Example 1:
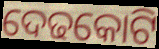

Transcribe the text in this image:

ଦେଢକୋଟି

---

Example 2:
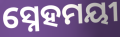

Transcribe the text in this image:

ସ୍ନେହମୟୀ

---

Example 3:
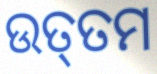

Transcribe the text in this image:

ଉତ୍‌ତମ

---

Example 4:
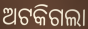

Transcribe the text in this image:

ଅଟକିଗଲା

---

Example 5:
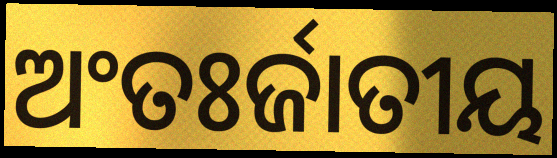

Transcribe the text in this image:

ଅଂତଃର୍ଜାତୀୟ